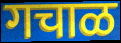
गचाळ